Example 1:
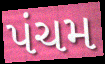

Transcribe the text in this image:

પંચમ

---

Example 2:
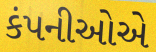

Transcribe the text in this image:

કંપનીઓએ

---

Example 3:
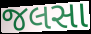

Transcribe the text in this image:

જલસા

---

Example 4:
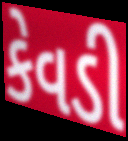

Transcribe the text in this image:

કેવડી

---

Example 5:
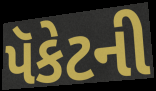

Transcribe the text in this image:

પૅકેટની